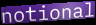
notional